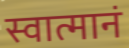
स्वात्मानं